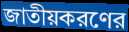
জাতীয়করণের